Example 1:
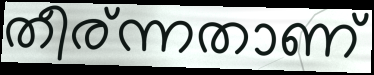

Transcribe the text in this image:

തീര്ന്നതാണ്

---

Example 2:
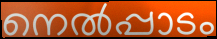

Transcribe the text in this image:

നെൽപ്പാടം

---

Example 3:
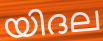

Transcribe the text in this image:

യിദല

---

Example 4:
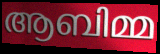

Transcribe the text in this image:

ആബിമ്മ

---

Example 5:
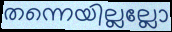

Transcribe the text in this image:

തന്നെയില്ലല്ലോ